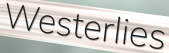
Westerlies